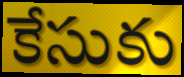
కేసుకు